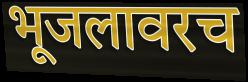
भूजलावरच